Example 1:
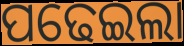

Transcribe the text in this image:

ପଢେଇଲା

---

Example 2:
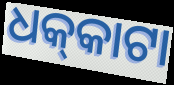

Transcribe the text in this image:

ଧକ୍‌କାଟା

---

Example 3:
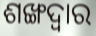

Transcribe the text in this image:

ଶଙ୍ଖଦ୍ୱାର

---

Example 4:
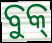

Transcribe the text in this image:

ବୁକ୍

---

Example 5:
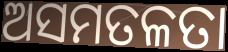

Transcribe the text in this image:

ଅସମତଳତା